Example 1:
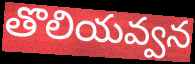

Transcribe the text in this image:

తొలియవ్వన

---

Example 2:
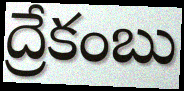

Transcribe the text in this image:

ద్రేకంబు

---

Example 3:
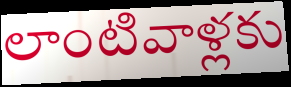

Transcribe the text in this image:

లాంటివాళ్లకు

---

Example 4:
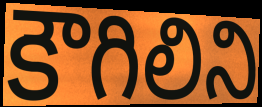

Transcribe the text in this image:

కౌగిలిని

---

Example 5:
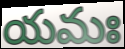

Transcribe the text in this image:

యమః